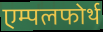
एम्पलफोर्थ